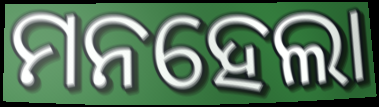
ମନହେଲା